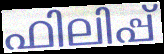
ഫിലിപ്പ്